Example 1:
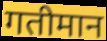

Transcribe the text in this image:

गतीमान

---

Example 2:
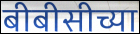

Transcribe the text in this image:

बीबीसीच्या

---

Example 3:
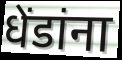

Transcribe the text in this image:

धेंडांना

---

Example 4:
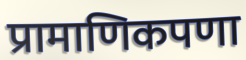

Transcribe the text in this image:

प्रामाणिकपणा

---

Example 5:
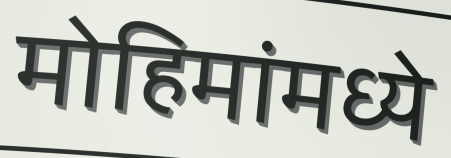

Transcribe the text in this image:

मोहिमांमध्ये